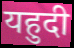
यहुदी